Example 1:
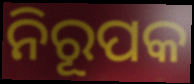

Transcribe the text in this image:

ନିରୂପକ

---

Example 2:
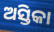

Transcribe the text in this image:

ଅସ୍ତିକା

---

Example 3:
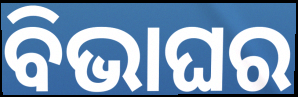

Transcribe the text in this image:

ବିଭାଘର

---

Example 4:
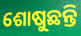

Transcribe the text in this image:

ଶୋଷୁଛନ୍ତି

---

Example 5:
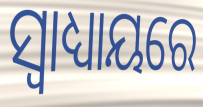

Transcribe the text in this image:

ସ୍ଵାଧ୍ୟାୟରେ